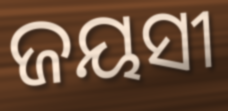
ଜୟସୀ